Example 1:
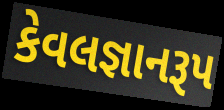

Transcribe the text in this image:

કેવલજ્ઞાનરૂપ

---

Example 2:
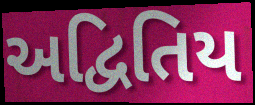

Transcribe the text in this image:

અદ્વિતિય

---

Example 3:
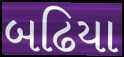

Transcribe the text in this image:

બઢિયા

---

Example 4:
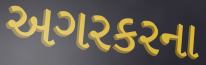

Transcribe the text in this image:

અગરકરના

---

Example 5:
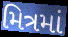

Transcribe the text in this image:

મિત્રમાં